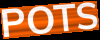
POTS